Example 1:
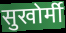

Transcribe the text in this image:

सुखोर्मी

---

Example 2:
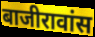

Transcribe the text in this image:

बाजीरावांस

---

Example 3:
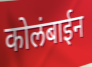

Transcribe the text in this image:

कोलंबाईन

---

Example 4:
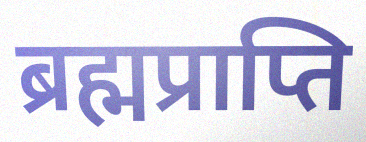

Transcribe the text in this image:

ब्रह्मप्राप्ति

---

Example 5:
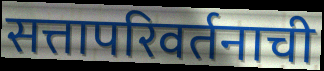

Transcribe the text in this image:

सत्तापरिवर्तनाची